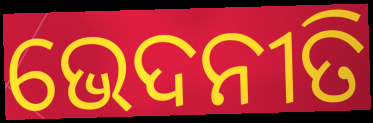
ଭେଦନୀତି